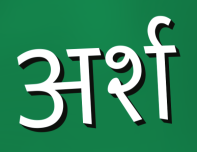
अर्श